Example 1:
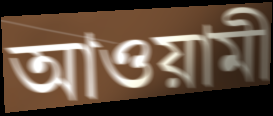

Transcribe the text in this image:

আওয়ামী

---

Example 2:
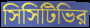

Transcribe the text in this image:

সিসিটিভির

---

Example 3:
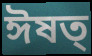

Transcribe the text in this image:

ঈষত্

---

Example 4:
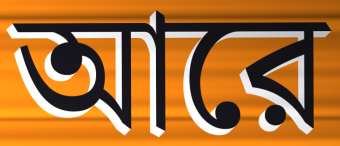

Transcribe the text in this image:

আরে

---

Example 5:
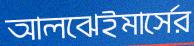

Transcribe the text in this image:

আলঝেইমার্সের